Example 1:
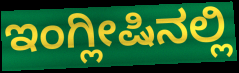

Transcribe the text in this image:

ಇಂಗ್ಲೀಷಿನಲ್ಲಿ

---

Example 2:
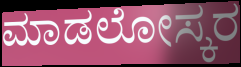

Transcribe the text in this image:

ಮಾಡಲೋಸ್ಕರ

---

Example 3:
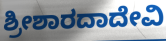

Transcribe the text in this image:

ಶ್ರೀಶಾರದಾದೇವಿ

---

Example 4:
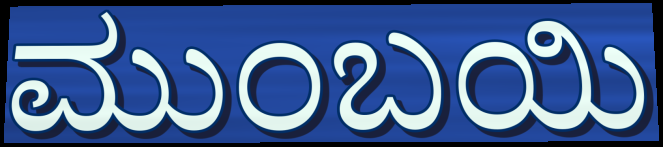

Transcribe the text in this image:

ಮುಂಬಯಿ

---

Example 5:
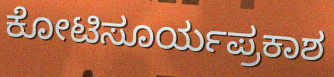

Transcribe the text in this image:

ಕೋಟಿಸೂರ್ಯಪ್ರಕಾಶ